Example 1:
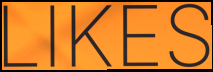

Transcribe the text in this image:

LIKES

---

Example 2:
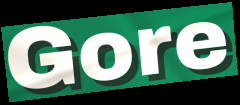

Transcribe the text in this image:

Gore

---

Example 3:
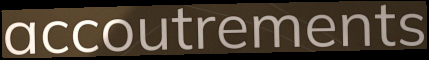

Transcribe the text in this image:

accoutrements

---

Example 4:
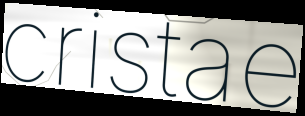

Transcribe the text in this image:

cristae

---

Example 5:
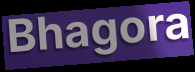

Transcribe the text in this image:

Bhagora